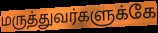
மருத்துவர்களுக்கே